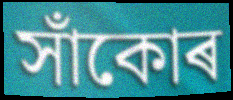
সাঁকোৰ